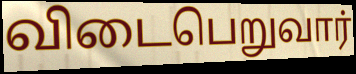
விடைபெறுவார்